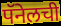
पॅनेलची